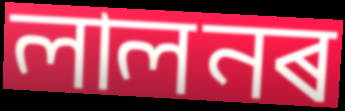
লালনৰ